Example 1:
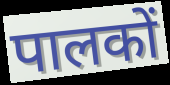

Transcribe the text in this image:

पालकों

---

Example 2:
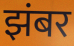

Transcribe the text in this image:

झंबर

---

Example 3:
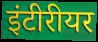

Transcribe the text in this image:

इंटीरीयर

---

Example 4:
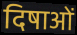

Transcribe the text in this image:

दिषाओं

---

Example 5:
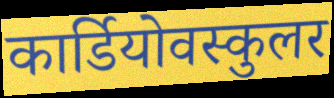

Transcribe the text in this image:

कार्डियोवस्कुलर